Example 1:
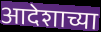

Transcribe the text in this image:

आदेशाच्या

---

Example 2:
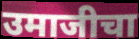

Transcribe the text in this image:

उमाजीचा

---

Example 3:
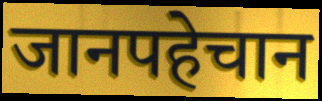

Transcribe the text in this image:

जानपहेचान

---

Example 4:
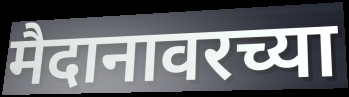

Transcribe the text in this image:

मैदानावरच्या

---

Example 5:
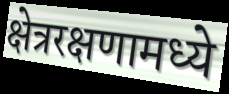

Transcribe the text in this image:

क्षेत्ररक्षणामध्ये